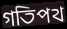
গতিপথ